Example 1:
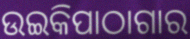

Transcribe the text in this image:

ଉଇକିପାଠାଗାର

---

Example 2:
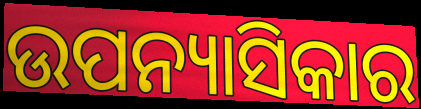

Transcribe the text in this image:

ଉପନ୍ୟାସିକାର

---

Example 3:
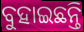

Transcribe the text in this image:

ବୁହାଇଛନ୍ତି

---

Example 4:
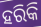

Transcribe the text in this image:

ହରିକି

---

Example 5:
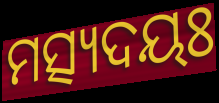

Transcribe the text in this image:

ମତ୍ସ୍ୟଦୟଃ